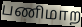
பணிமாற